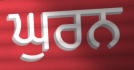
ਘੁਰਨ